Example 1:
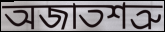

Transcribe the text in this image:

অজাতশত্রু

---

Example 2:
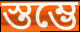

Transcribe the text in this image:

স্তম্ভে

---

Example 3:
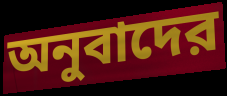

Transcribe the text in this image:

অনুবাদের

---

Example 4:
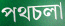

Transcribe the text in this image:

পথচলা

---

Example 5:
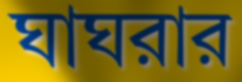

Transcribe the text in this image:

ঘাঘরার